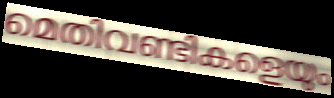
മെതിവണ്ടികളെയും